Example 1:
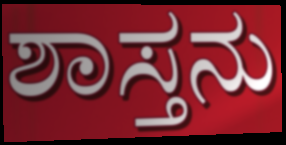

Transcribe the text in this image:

ಶಾಸ್ತನು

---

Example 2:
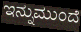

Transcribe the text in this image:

ಇನ್ನುಮುಂದೆ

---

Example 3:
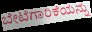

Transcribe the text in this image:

ಬೇಟೆಗಾರಿಕೆಯನ್ನು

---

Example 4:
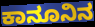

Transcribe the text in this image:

ಕಾನೂನಿನ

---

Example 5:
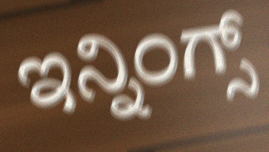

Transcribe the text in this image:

ಇನ್ನಿಂಗ್ಸ್